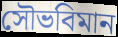
সৌভবিমান